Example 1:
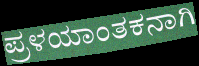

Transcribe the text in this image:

ಪ್ರಳಯಾಂತಕನಾಗಿ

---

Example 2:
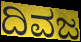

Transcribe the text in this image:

ದಿವಜ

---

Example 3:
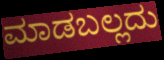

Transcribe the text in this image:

ಮಾಡಬಲ್ಲದು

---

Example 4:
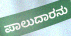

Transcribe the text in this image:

ಪಾಲುದಾರನು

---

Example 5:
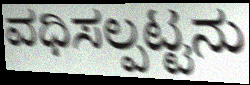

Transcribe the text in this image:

ವಧಿಸಲ್ಪಟ್ಟನು